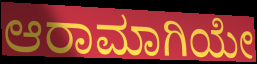
ಆರಾಮಾಗಿಯೇ